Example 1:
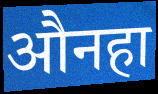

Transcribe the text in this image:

औनहा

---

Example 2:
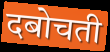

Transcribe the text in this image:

दबोचती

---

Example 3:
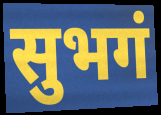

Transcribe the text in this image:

सुभगं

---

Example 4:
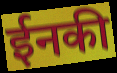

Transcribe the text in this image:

ईनकी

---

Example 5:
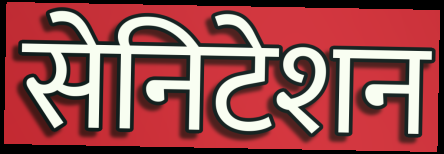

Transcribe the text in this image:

सेनिटेशन